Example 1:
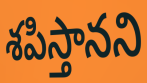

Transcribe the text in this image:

శపిస్తానని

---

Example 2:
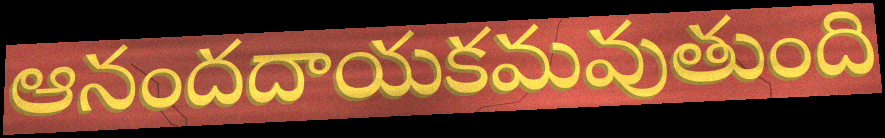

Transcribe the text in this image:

ఆనందదాయకమవుతుంది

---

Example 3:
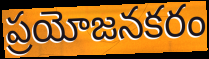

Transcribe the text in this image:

ప్రయోజనకరం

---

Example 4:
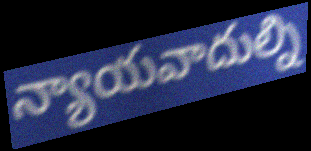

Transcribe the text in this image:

న్యాయవాదుల్ని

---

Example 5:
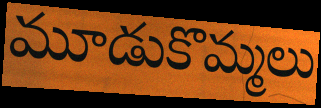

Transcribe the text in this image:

మూడుకొమ్మలు